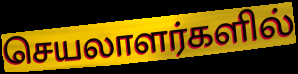
செயலாளர்களில்